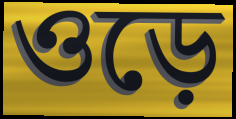
ওড়ে